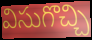
విసుగొచ్చి